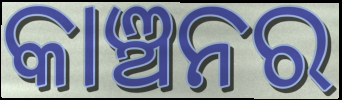
କାଞ୍ଚନର